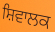
ਸ਼ਿਵਾਲਕ